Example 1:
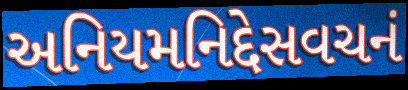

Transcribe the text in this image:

અનિયમનિદ્દેસવચનં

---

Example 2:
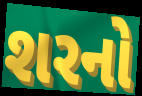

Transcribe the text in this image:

શરનો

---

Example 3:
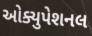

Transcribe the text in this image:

ઓક્યુપેશનલ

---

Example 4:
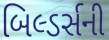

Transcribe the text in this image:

બિલ્ડર્સની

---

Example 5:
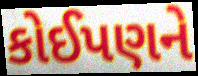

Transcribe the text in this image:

કોઈપણને